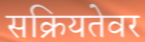
सक्रियतेवर